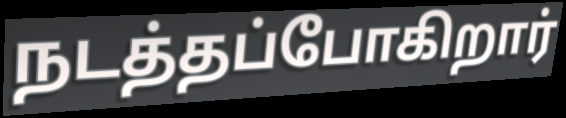
நடத்தப்போகிறார்